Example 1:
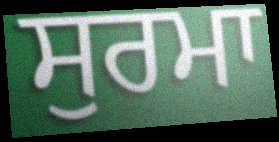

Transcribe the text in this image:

ਸੁਰਮਾ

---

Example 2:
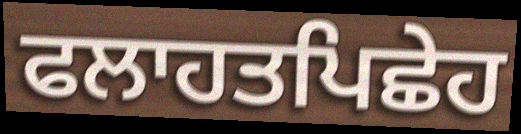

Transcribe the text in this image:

ਫਲਾਹਤਪਿਛੇਹ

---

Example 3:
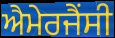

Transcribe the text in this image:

ਐਮੇਰਜੈਂਸੀ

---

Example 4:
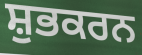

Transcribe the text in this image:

ਸ਼ੁਭਕਰਨ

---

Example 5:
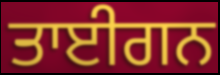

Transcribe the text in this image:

ਤਾਈਗਨ